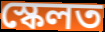
স্কেলত